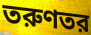
তরুণতর